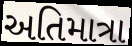
અતિમાત્રા